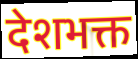
देशभक्त